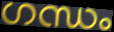
ഗന്ധം